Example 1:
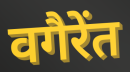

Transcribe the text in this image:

वगैरेंत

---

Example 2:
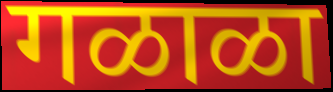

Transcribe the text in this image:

गळाळा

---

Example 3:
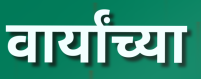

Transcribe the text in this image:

वार्यांच्या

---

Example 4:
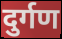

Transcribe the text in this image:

दुर्गण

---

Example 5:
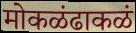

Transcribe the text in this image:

मोकळंढाकळं